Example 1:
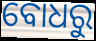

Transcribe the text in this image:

ବୋଧରୁ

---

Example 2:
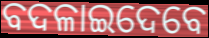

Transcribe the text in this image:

ବଦଳାଇଦେବେ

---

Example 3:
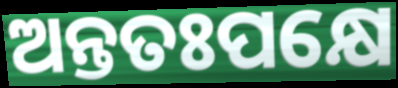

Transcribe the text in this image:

ଅନ୍ତତଃପକ୍ଷେ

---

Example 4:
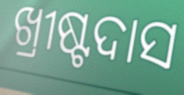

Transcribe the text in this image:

ଖ୍ରୀଷ୍ଟଦାସ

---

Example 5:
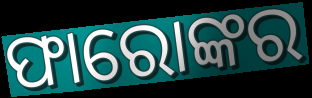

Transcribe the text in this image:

ଫାରୋଙ୍କର